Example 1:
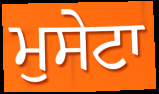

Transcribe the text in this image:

ਮੁਸੇਟਾ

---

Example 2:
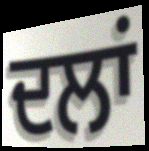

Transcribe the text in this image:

ਦਲਾਂ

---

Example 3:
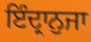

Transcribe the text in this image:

ਇੰਦ੍ਰਾਨੁਜਾ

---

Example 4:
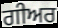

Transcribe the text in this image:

ਗੀਅਰ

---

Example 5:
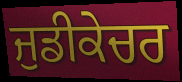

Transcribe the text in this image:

ਜੁਡੀਕੇਚਰ